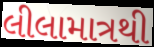
લીલામાત્રથી